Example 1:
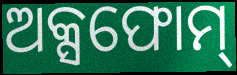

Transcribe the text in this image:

ଅକ୍ସଫୋମ୍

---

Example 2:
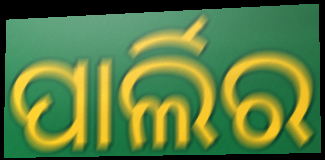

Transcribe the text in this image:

ପାର୍ଲିର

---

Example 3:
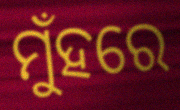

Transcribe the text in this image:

ମୁଁହରେ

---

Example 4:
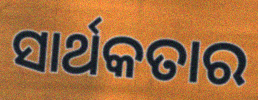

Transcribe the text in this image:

ସାର୍ଥକତାର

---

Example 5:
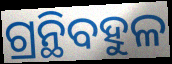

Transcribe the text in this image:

ଗ୍ରନ୍ଥିବହୁଳ